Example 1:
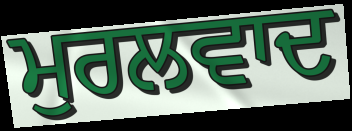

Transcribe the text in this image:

ਮੁਰਲਵਾਦ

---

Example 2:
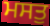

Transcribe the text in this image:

ਮਸਤੁ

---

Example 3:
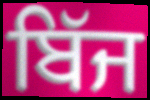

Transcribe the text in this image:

ਬਿੱਜ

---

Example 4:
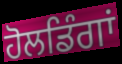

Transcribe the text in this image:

ਹੋਲਡਿੰਗਾਂ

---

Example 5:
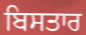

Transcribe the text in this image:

ਬਿਸਤਾਰ